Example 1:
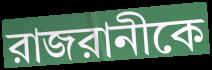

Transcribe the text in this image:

রাজরানীকে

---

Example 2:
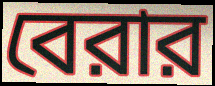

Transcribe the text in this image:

বেরার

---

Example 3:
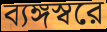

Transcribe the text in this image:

ব্যঙ্গস্বরে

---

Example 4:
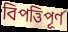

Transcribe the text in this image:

বিপত্তিপূর্ণ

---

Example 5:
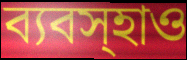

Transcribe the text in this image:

ব্যবস্হাও